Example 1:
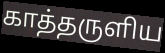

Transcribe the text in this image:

காத்தருளிய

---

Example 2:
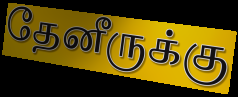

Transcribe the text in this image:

தேனீருக்கு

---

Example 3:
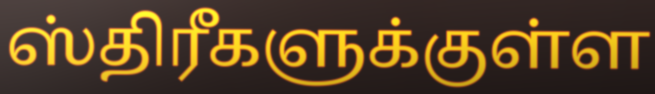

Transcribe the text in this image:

ஸ்திரீகளுக்குள்ள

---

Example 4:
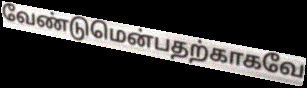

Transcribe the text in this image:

வேண்டுமென்பதற்காகவே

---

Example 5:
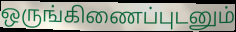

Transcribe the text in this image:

ஒருங்கிணைப்புடனும்